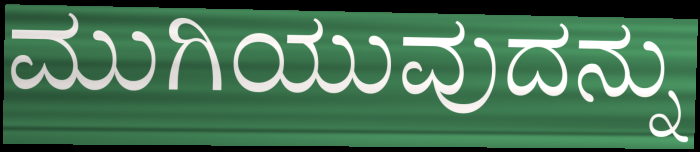
ಮುಗಿಯುವುದನ್ನು